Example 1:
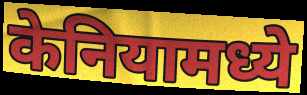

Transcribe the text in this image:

केनियामध्ये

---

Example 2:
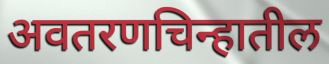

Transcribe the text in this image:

अवतरणचिन्हातील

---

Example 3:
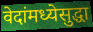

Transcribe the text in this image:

वेदांमध्येसुद्धा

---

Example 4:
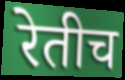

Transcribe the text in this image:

रेतीच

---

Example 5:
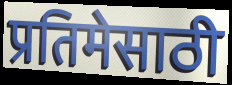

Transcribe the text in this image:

प्रतिमेसाठी